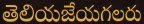
తెలియజేయగలరు